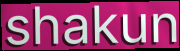
shakun